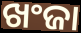
ଖଂଜା